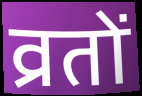
व्रतों